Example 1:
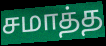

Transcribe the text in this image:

சமாத்த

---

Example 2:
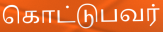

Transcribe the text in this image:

கொட்டுபவர்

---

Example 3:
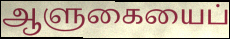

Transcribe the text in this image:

ஆளுகையைப்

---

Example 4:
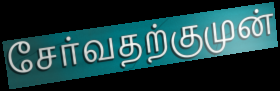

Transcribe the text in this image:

சேர்வதற்குமுன்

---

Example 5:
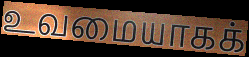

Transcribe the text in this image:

உவமையாகக்